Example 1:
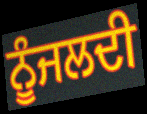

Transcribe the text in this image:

ਨੂੰਜਲਦੀ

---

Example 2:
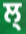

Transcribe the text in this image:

ਲ੍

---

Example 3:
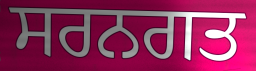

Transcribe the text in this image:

ਸਰਨਗਤ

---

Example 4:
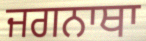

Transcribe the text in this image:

ਜਗਨਾਥਾ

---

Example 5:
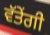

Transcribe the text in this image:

ਵੱਤੇਂਗੀ